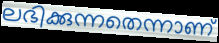
ലഭിക്കുന്നതെന്നാണ്